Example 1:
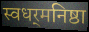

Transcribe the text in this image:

स्वधर्मनिष्ठा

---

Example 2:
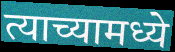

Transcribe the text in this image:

त्याच्यामध्ये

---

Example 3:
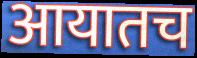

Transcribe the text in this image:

आयातच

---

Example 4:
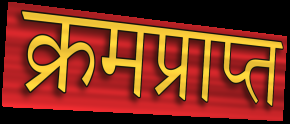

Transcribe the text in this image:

क्रमप्राप्‍त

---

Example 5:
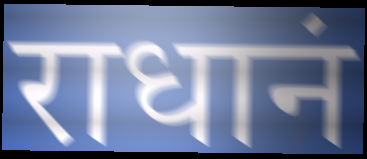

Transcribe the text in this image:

राधानं